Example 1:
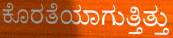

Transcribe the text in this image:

ಕೊರತೆಯಾಗುತ್ತಿತ್ತು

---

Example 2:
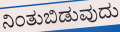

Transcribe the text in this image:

ನಿಂತುಬಿಡುವುದು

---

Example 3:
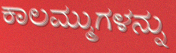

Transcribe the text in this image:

ಕಾಲಮ್ಮುಗಳನ್ನು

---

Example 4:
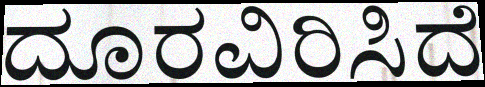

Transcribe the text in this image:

ದೂರವಿರಿಸಿದೆ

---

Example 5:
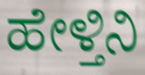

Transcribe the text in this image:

ಹೇಳ್ತಿನಿ